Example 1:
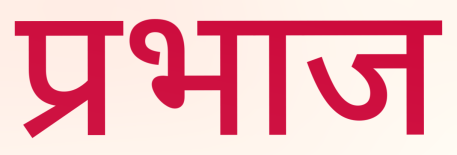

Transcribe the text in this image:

प्रभाज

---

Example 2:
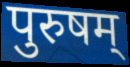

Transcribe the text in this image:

पुरुषम्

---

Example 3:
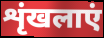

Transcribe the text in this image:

शृंखलाएं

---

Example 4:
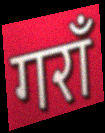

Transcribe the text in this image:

गराँ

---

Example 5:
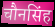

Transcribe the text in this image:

चौनसिंह